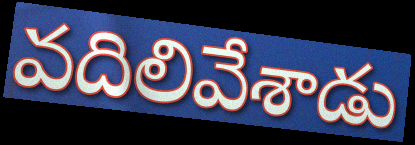
వదిలివేశాడు